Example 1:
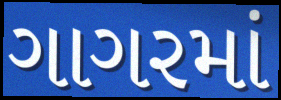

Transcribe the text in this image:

ગાગરમાં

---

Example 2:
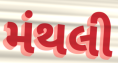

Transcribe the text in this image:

મંથલી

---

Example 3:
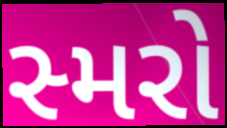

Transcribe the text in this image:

સ્મરો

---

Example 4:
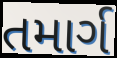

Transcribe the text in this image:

તમાર્ગ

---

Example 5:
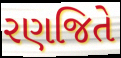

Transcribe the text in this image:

રણજિતે